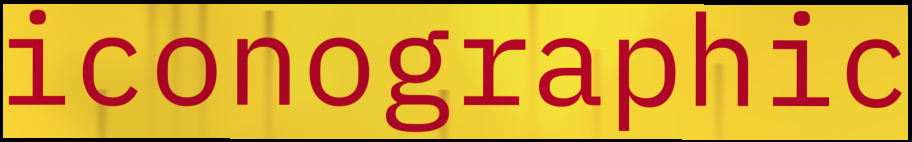
iconographic